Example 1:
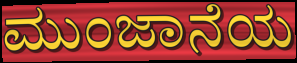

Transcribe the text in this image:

ಮುಂಜಾನೆಯ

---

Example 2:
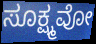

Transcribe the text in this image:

ಸೂಕ್ಷ್ಮವೋ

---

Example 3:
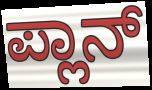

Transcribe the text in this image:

ಪ್ಲಾನ್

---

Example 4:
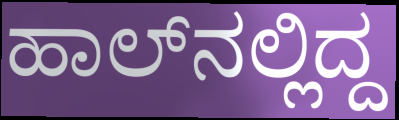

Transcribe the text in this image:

ಹಾಲ್‌ನಲ್ಲಿದ್ದ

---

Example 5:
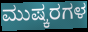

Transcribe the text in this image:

ಮುಷ್ಕರಗಳ